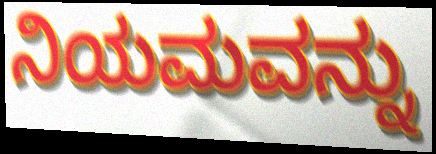
ನಿಯಮವನ್ನು